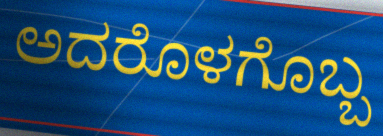
ಅದರೊಳಗೊಬ್ಬ